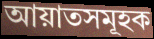
আয়াতসমূহক